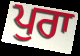
ਪੁਰਾ